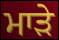
ਮਾੜੇ